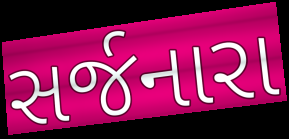
સર્જનારા